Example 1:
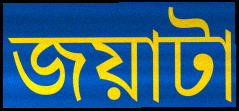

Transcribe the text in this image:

জয়াটা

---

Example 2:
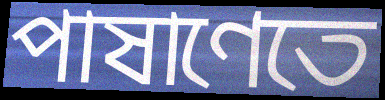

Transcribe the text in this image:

পাষাণেতে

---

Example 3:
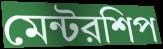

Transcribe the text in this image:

মেন্টরশিপ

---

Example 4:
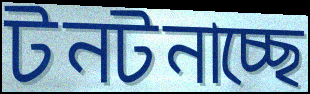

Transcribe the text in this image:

টনটনাচ্ছে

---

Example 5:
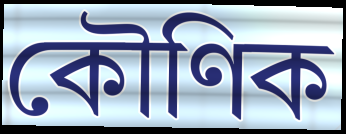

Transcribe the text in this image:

কৌণিক